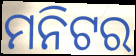
ମନିଟର